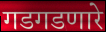
गडगडणारे